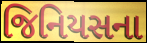
જિનિયસના